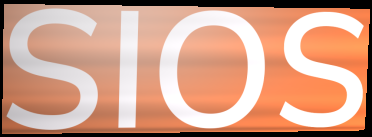
SIOS